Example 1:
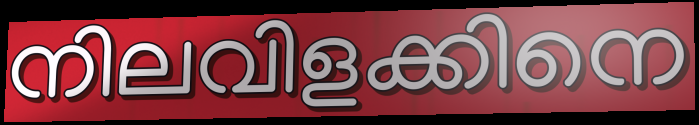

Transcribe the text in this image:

നിലവിളക്കിനെ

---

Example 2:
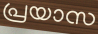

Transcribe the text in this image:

പ്രയാസ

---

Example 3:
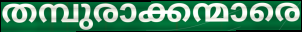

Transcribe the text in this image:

തമ്പുരാക്കന്മാരെ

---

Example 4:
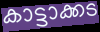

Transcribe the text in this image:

കാട്ടാക്കട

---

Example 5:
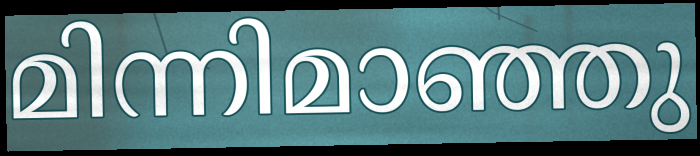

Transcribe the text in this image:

മിന്നിമാഞ്ഞു